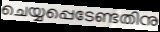
ചെയ്യപ്പെടേണ്ടതിനു